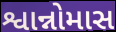
શ્વાન્નોમાસ